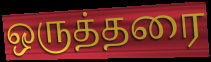
ஒருத்தரை